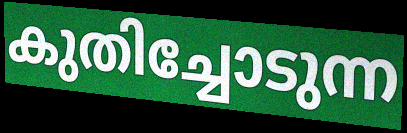
കുതിച്ചോടുന്ന